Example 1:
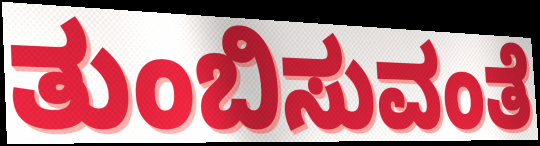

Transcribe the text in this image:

ತುಂಬಿಸುವಂತೆ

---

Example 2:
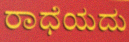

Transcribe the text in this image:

ರಾಧೆಯದು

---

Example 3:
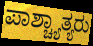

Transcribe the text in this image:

ಪಾಶ್ಚ್ಯಾತ್ಯರು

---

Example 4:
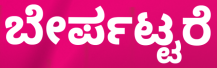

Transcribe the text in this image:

ಬೇರ್ಪಟ್ಟರೆ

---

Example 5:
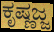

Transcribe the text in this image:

ಕೃಷ್ಣಜ್ಜ